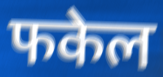
फकेल